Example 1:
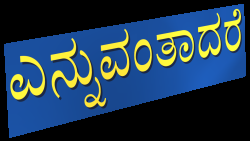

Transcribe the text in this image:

ಎನ್ನುವಂತಾದರೆ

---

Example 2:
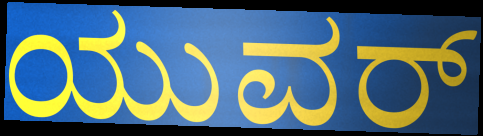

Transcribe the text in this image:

ಯುವರ್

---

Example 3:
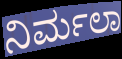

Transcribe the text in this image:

ನಿರ್ಮಲಾ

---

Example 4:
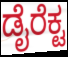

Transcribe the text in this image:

ಡೈರೆಕ್ಟ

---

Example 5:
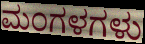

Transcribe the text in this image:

ಮಂಗಳಗಳು